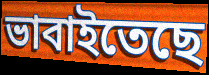
ভাবাইতেছে